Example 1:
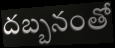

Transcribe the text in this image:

దబ్బనంతో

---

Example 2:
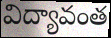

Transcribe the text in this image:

విద్యావంత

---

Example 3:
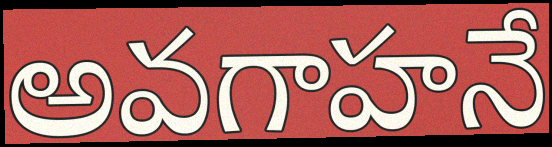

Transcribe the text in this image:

అవగాహనే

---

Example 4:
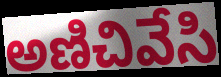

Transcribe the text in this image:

అణిచివేసి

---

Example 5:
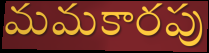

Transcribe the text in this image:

మమకారపు